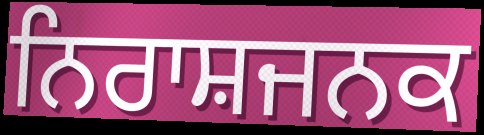
ਨਿਰਾਸ਼ਜਨਕ